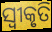
ସ୍ବୀକୃତି